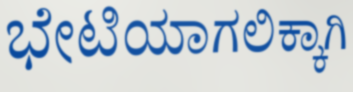
ಭೇಟಿಯಾಗಲಿಕ್ಕಾಗಿ